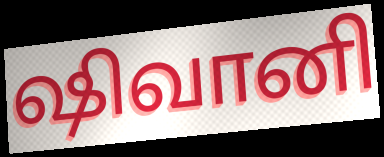
ஷிவானி